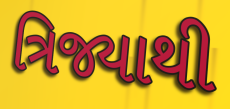
ત્રિજ્યાથી